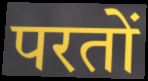
परतों